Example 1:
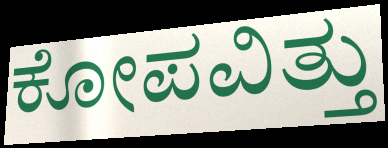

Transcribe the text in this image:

ಕೋಪವಿತ್ತು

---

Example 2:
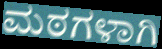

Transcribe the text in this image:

ಮಠಗಳಾಗಿ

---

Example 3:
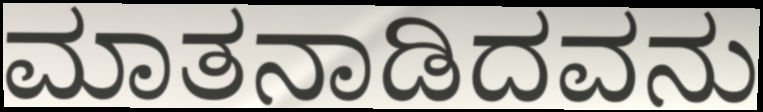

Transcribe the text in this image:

ಮಾತನಾಡಿದವನು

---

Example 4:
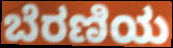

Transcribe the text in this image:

ಬೆರಣಿಯ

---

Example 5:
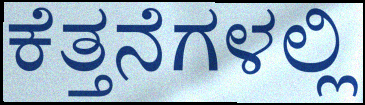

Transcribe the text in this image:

ಕೆತ್ತನೆಗಳಲ್ಲಿ